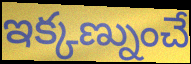
ఇక్కణ్నుంచే